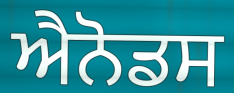
ਐਨੋਡਸ